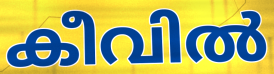
കീവിൽ